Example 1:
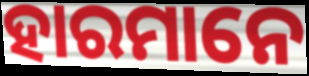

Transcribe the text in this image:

ହାରମାନେ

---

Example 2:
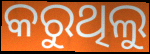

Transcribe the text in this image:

କରୁଥିଲୁ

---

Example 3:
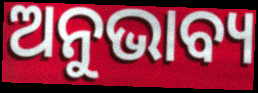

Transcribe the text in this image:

ଅନୁଭାବ୍ୟ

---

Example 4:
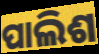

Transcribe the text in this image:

ପାଲିଶ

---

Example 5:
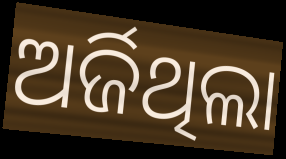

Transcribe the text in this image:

ଅର୍ଜିଥିଲା